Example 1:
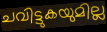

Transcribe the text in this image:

ചവിട്ടുകയുമില്ല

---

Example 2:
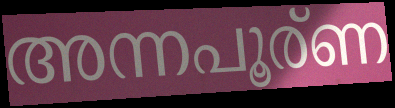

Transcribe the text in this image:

അന്നപൂര്ണ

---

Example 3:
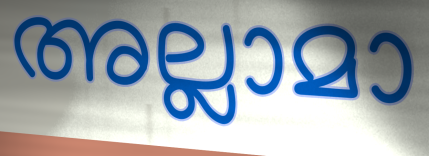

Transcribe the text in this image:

അല്ലാമാ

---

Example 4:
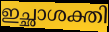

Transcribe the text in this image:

ഇച്ഛാശക്തി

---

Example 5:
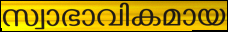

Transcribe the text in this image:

സ്വാഭാവികമായ